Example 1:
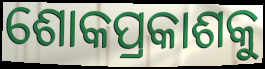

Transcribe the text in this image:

ଶୋକପ୍ରକାଶକୁ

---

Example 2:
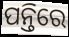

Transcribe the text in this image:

ପନ୍ତିରେ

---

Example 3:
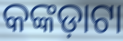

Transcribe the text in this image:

କଙ୍କଡ଼ାଟା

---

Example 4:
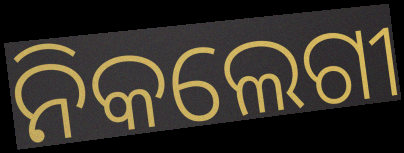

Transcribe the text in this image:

ନିକଲେଗୀ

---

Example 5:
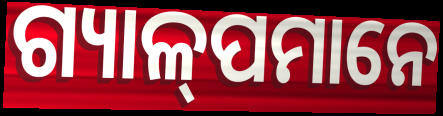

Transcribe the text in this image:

ଗ୍ୟାଳ୍‍ପମାନେ